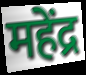
महेंद्र